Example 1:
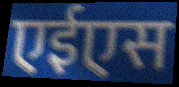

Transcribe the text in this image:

एईएस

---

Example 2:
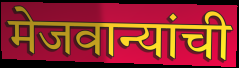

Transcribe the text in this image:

मेजवान्यांची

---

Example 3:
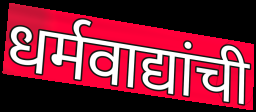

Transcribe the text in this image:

धर्मवाद्यांची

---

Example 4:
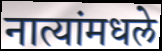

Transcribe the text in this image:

नात्यांमधले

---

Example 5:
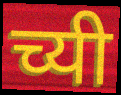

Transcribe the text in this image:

च्यी